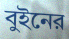
বুইনের